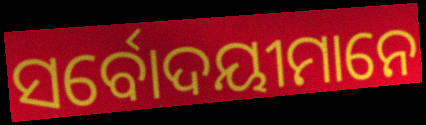
ସର୍ବୋଦୟୀମାନେ